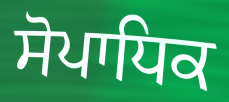
ਸੋਪਾਧਿਕ